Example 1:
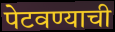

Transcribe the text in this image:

पेटवण्याची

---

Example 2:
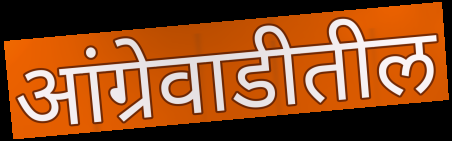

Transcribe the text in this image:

आंग्रेवाडीतील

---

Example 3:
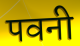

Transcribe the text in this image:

पवनी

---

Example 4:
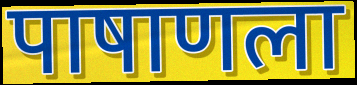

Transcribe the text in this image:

पाषाणला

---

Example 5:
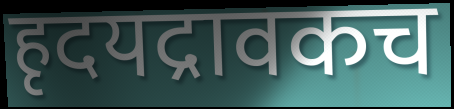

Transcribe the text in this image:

हृदयद्रावकच